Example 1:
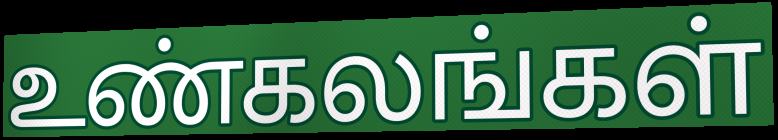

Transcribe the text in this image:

உண்கலங்கள்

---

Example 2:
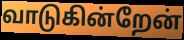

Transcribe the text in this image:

வாடுகின்றேன்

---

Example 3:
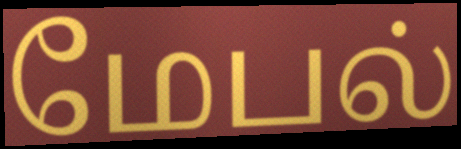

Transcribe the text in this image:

மேபல்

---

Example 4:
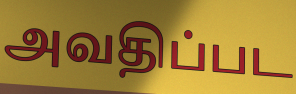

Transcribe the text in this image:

அவதிப்பட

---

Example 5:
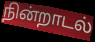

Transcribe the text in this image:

நின்றாடல்